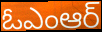
ఓఎంఆర్